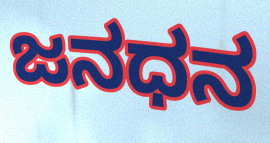
ಜನಧನ